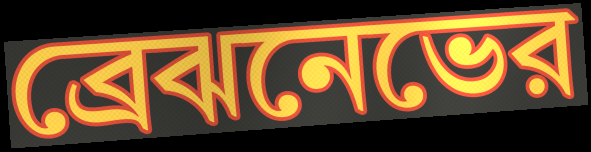
ব্রেঝনেভের